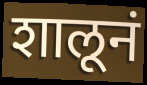
शालूनं